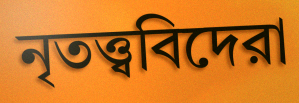
নৃতত্ত্ববিদেরা